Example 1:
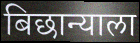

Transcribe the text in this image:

बिछान्याला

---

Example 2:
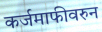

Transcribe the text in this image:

कर्जमाफीवरुन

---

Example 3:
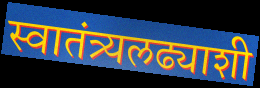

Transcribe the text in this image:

स्वातंत्र्यलढ्याशी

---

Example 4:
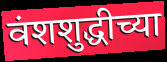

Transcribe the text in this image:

वंशशुद्धीच्या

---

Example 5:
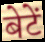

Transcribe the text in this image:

बेटें